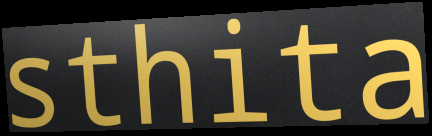
sthita